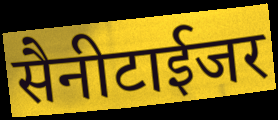
सैनीटाईजर